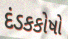
દંડકકોષો